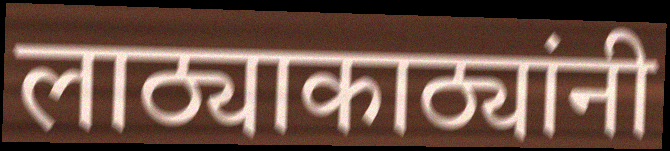
लाठ्याकाठ्यांनी